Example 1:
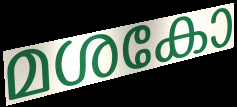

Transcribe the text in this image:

മശകോ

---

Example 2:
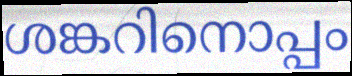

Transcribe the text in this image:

ശങ്കറിനൊപ്പം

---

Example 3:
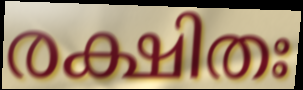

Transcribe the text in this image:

രക്ഷിതഃ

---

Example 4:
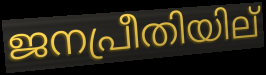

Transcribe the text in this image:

ജനപ്രീതിയില്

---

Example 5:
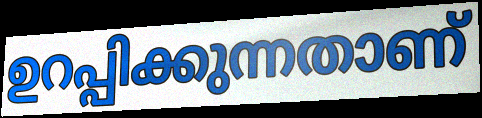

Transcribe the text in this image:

ഉറപ്പിക്കുന്നതാണ്